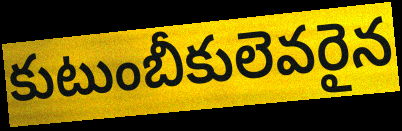
కుటుంబీకులెవరైన